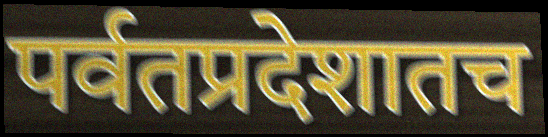
पर्वतप्रदेशातच